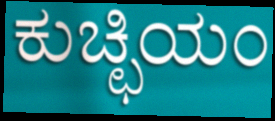
ಕುಚ್ಛಿಯಂ